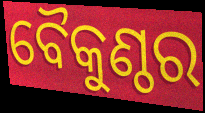
ବୈକୁଣ୍ଠର